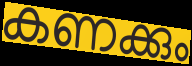
കണക്കും